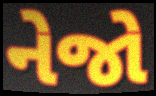
નેજો